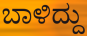
ಬಾಳಿದ್ದು